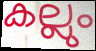
കല്ലും